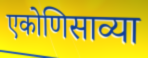
एकोणिसाव्या